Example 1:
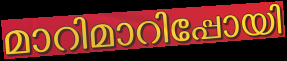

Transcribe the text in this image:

മാറിമാറിപ്പോയി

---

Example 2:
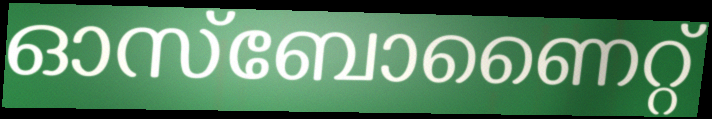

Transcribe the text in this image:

ഓസ്ബോണൈറ്റ്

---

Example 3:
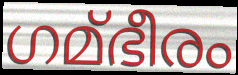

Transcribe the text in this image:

ഗമ്ഭീരം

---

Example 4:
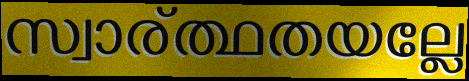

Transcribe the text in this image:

സ്വാര്ത്ഥതയല്ലേ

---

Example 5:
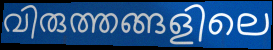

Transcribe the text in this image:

വിരുത്തങ്ങളിലെ